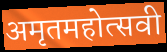
अमृतमहोत्सवी